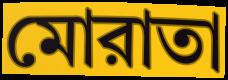
মোরাতা